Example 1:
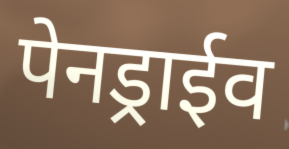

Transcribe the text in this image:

पेनड्राईव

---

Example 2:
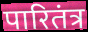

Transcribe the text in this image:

पारितंत्र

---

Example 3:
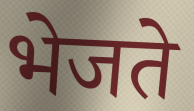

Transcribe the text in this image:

भेजते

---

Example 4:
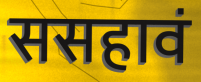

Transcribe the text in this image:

ससहावं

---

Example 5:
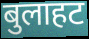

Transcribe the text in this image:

बुलाहट